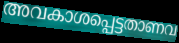
അവകാശപ്പെട്ടതാണവ